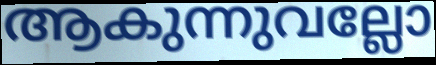
ആകുന്നുവല്ലോ